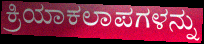
ಕ್ರಿಯಾಕಲಾಪಗಳನ್ನು